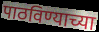
पाठविण्याच्या